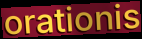
orationis